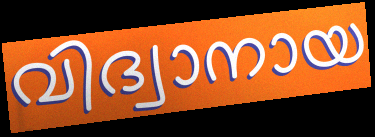
വിദ്വാനായ